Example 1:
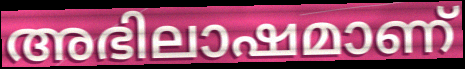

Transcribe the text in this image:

അഭിലാഷമാണ്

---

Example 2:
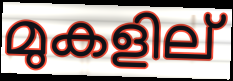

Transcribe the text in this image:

മുകളില്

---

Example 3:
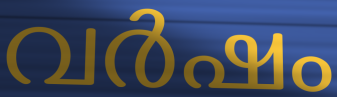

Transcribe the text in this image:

വർഷം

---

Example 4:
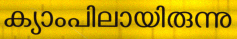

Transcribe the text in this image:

ക്യാംപിലായിരുന്നു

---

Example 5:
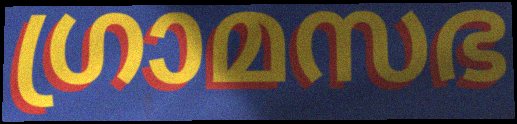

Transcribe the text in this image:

ഗ്രാമസഭ